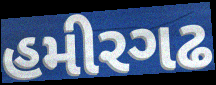
હમીરગઢ